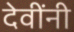
देवींनी